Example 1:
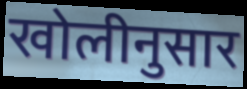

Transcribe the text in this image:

खोलीनुसार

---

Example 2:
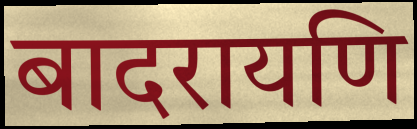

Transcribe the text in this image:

बादरायणि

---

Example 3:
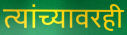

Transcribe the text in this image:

त्यांच्यावरही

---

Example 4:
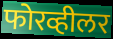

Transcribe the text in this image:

फोरव्हीलर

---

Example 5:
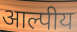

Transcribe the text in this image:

आल्पीय